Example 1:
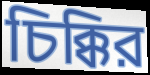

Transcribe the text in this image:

চিক্কির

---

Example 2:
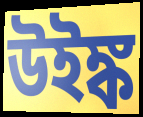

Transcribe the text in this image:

উইঙ্ক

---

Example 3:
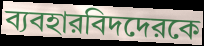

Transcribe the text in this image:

ব্যবহারবিদদেরকে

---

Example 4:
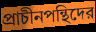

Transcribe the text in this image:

প্রাচীনপন্থিদের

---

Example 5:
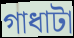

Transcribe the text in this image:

গাধাটা